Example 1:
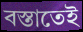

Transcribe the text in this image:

বস্তাতেই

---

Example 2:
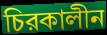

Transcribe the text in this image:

চিরকালীন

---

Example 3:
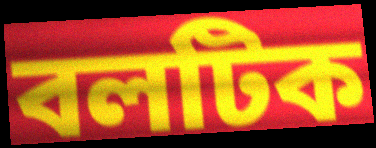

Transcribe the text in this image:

বলটিক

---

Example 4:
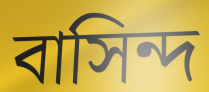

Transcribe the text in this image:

বাসিন্দ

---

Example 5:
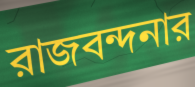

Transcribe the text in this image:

রাজবন্দনার